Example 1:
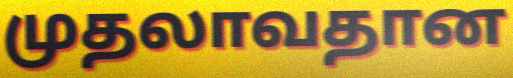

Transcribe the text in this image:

முதலாவதான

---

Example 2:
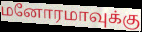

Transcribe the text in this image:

மனோரமாவுக்கு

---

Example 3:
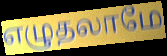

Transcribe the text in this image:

எழுதலாமே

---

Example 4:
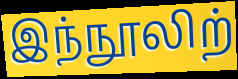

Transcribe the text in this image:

இந்நூலிற்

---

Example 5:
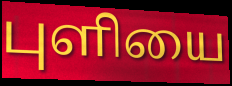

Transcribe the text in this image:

புளியை